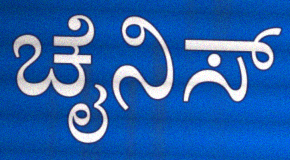
ಚೈನಿಸ್